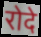
रोदे